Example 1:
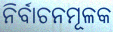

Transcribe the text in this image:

ନିର୍ବାଚନମୂଳକ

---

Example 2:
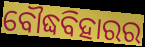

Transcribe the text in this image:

ବୌଦ୍ଧବିହାରର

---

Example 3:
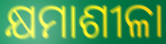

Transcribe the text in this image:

କ୍ଷମାଶୀଳା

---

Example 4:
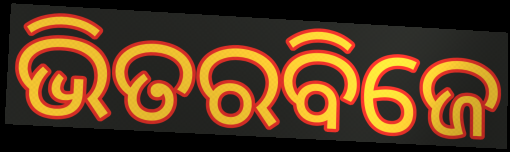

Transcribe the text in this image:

ଭିତରବିଜେ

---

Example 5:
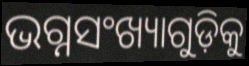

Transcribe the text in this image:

ଭଗ୍ନସଂଖ୍ୟାଗୁଡ଼ିକୁ